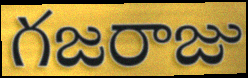
గజరాజు